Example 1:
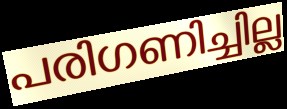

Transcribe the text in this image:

പരിഗണിച്ചില്ല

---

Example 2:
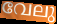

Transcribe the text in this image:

വേലു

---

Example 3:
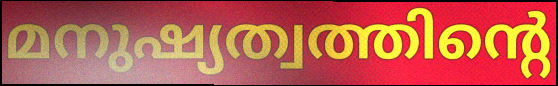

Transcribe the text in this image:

മനുഷ്യത്വത്തിന്റെ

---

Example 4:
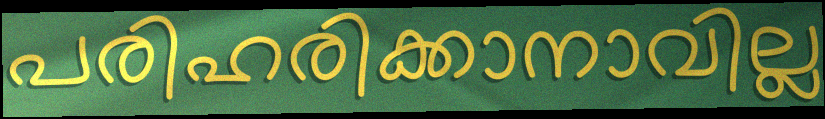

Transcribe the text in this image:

പരിഹരിക്കാനാവില്ല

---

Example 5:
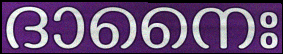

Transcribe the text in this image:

ദാനൈഃ